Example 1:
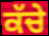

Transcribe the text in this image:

ਕੱਚੇ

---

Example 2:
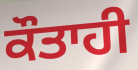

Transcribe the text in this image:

ਕੌਤਾਹੀ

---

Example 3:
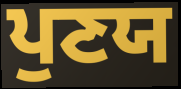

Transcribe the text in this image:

ਪੁਣਯ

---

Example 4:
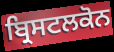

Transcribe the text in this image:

ਬ੍ਰਿਸਟਲਕੋਨ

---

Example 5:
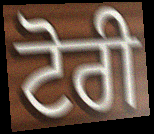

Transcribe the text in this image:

ਟੋਰੀ